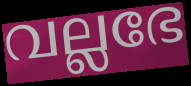
വല്ലഭേ